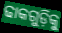
ଢାକଗୁଡ଼ିକୁ